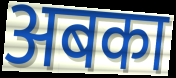
अबका